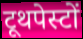
टूथपेस्टों